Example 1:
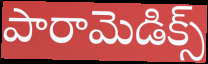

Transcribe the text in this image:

పారామెడిక్స్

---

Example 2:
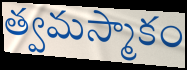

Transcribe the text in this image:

త్వమస్మాకం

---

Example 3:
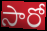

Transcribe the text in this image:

సారో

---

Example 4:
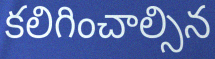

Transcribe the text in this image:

కలిగించాల్సిన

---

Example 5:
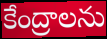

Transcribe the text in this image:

కేంద్రాలను